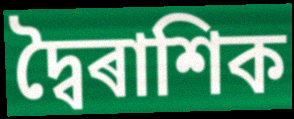
দ্বৈৰাশিক